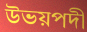
উভয়পদী